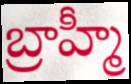
బ్రాహ్మీ